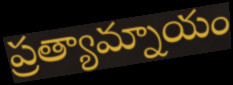
ప్రత్యామ్నాయం